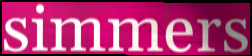
simmers